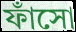
ফাঁসো